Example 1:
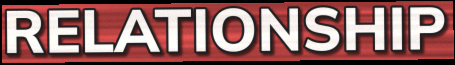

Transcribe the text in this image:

RELATIONSHIP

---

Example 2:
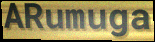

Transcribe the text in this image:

ARumuga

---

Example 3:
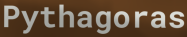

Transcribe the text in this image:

Pythagoras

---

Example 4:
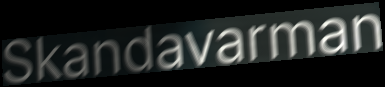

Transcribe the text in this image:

Skandavarman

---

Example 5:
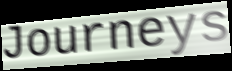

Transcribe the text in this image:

Journeys